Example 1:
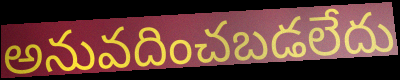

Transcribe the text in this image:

అనువదించబడలేదు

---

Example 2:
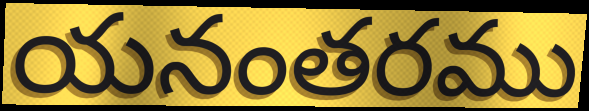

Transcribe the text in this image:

యనంతరము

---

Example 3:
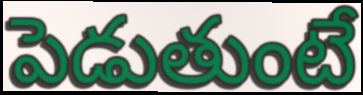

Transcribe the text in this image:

పెడుతుంటే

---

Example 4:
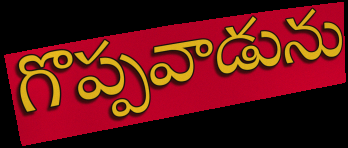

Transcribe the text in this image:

గొప్పవాడును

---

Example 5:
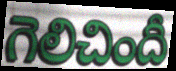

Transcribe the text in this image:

గెలిచిందీ